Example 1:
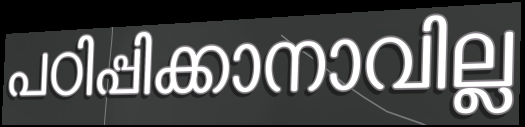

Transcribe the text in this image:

പഠിപ്പിക്കാനാവില്ല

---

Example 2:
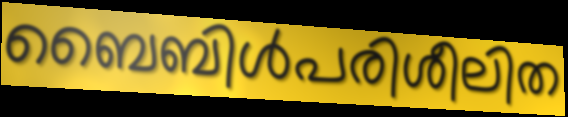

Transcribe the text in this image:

ബൈബിൾപരിശീലിത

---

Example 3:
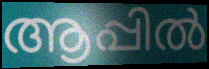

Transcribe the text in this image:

ആപ്പിൽ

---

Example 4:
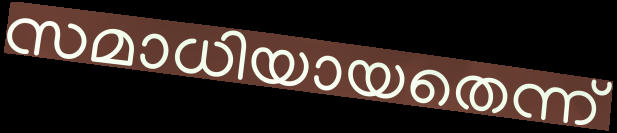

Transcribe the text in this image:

സമാധിയായതെന്ന്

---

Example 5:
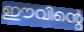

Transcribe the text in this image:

ഈവിന്റെ